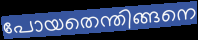
പോയതെന്തിങ്ങനെ